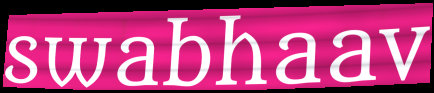
swabhaav